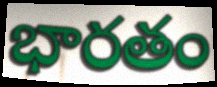
భారతం